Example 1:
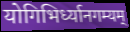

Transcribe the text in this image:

योगिभिर्ध्यानगम्यम्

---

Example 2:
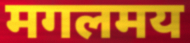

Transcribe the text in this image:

मगलमय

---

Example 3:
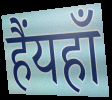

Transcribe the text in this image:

हैंयहाँ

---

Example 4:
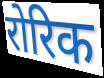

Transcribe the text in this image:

रोरिक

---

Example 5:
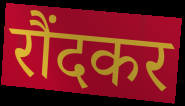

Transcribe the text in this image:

रौंदकर